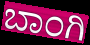
ಬಾಂಗಿ